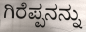
ಗಿರೆಪ್ಪನನ್ನು